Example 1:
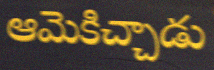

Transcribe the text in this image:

ఆమెకిచ్చాడు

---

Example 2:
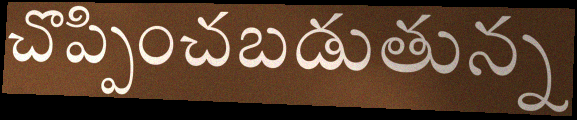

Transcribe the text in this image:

చొప్పించబడుతున్న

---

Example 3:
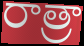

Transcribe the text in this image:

రాత్రా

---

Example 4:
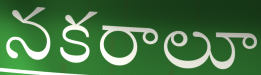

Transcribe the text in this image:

నకరాలూ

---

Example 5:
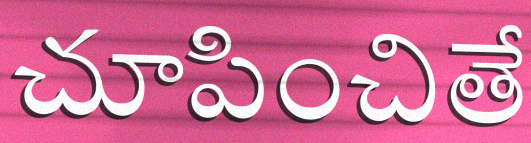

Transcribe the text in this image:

చూపించితే